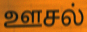
ஊசல்